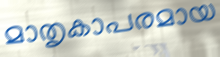
മാതൃകാപരമായ